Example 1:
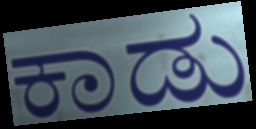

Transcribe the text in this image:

ಕಾಡು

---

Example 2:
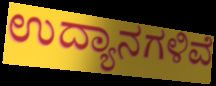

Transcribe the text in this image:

ಉದ್ಯಾನಗಳಿವೆ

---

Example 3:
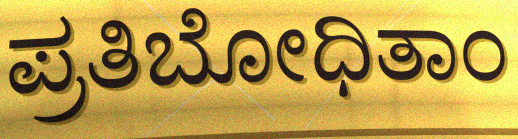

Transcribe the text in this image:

ಪ್ರತಿಬೋಧಿತಾಂ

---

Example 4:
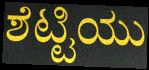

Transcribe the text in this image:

ಶೆಟ್ಟಿಯು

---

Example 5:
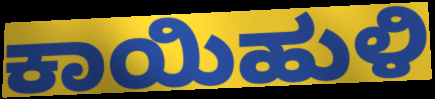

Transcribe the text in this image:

ಕಾಯಿಹುಳಿ